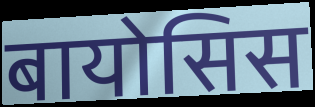
बायोसिस